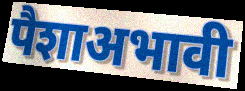
पैशाअभावी